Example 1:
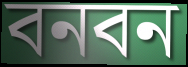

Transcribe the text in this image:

বনবন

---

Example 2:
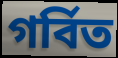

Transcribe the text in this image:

গর্বিত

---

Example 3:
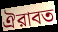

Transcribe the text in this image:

ঐরাবত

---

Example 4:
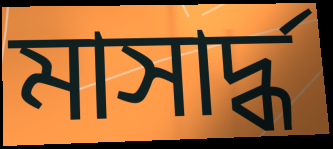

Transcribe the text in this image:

মাসার্দ্ধ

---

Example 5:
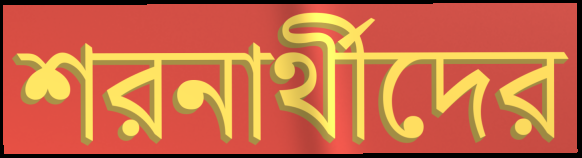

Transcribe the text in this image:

শরনার্থীদের